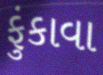
ફુંકાવા